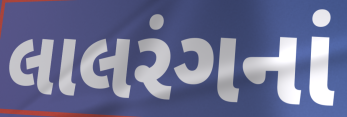
લાલરંગનાં